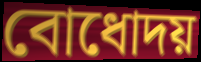
বোধোদয়